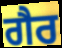
ਗੈਰ